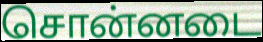
சொன்னடை